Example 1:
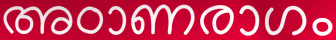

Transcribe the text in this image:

അഠാണരാഗം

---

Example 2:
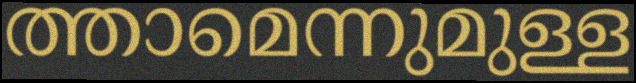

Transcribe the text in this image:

ത്താമെന്നുമുള്ള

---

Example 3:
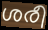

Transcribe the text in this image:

ശരീ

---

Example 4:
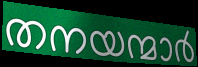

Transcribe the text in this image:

തനയന്മാർ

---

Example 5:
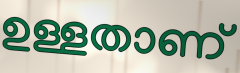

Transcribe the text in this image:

ഉള്ളതാണ്